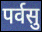
पर्वसु